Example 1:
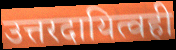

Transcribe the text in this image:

उत्तरदायित्वही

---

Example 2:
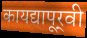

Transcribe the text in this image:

कायद्यापूर्वी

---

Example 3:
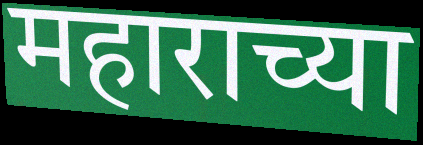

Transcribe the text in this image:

महाराच्या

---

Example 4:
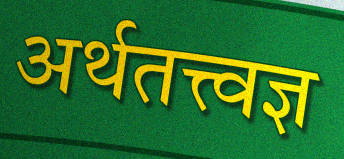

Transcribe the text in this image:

अर्थतत्त्वज्ञ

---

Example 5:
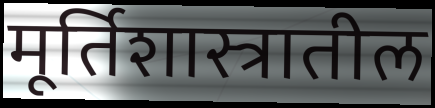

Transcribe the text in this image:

मूर्तिशास्त्रातील